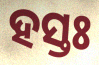
ହସ୍ତଃ